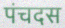
पंचदस